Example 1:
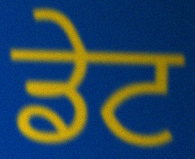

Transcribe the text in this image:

ਡੇਟ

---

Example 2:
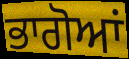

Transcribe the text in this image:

ਭਾਗੋਆਂ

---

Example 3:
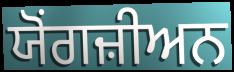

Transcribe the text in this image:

ਯੋਂਗਜ਼ੀਅਨ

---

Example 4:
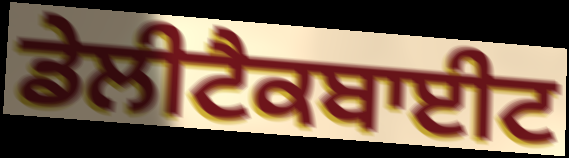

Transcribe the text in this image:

ਡੇਲੀਟੈਕਬਾਈਟ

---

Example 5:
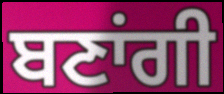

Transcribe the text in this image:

ਬਣਾਂਗੀ